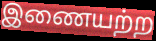
இணையற்ற